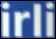
irli